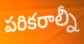
పరికరాల్నీ